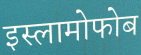
इस्लामोफोब